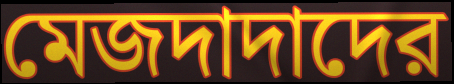
মেজদাদাদের